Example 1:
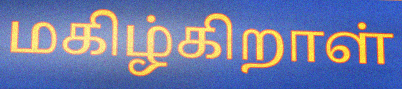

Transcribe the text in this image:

மகிழ்கிறாள்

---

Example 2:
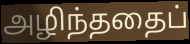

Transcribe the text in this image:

அழிந்ததைப்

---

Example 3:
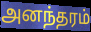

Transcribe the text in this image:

அனந்தரம்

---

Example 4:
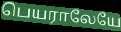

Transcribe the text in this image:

பெயராலேயே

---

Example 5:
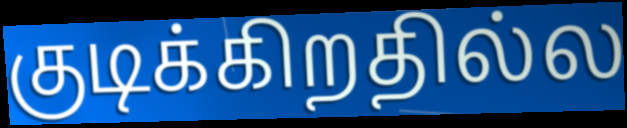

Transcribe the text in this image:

குடிக்கிறதில்ல